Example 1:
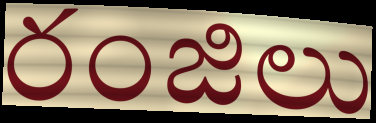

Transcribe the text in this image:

రంజిలు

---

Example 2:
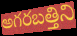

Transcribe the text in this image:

అగరబత్తిని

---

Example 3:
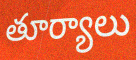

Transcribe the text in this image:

తూర్యాలు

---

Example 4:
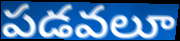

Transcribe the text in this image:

పడవలూ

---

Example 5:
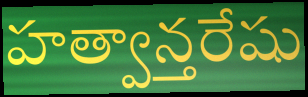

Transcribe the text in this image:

హత్వాన్తరేషు